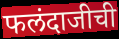
फलंदाजीची